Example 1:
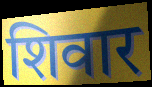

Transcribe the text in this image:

शिवार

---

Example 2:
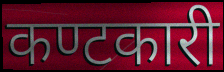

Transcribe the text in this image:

कण्टकारी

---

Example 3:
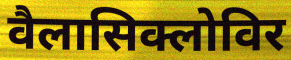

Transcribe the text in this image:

वैलासिक्लोविर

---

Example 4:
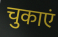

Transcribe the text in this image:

चुकाएं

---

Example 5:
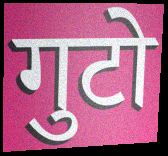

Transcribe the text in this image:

गुटो